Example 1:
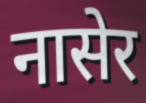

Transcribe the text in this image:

नासेर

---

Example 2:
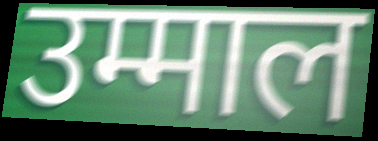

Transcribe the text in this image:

उम्माल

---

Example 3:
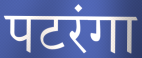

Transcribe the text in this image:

पटरंगा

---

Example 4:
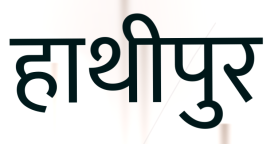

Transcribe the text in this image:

हाथीपुर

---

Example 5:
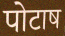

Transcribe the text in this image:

पोटाष